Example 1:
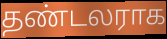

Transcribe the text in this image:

தண்டலராக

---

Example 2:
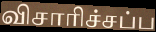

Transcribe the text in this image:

விசாரிச்சப்ப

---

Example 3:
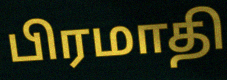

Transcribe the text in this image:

பிரமாதி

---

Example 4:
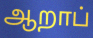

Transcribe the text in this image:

ஆறாப்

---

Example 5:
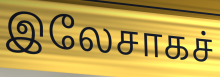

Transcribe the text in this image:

இலேசாகச்